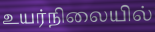
உயர்நிலையில்